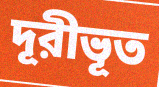
দূরীভূত